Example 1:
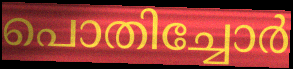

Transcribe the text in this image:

പൊതിച്ചോർ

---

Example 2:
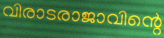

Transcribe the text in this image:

വിരാടരാജാവിന്റെ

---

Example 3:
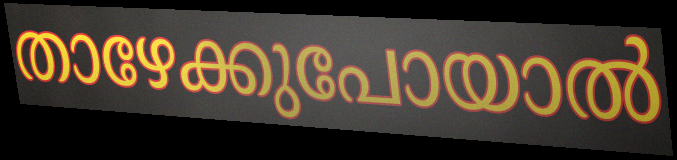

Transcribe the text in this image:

താഴേക്കുപോയാൽ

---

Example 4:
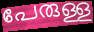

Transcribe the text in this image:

പേരുള്ള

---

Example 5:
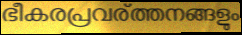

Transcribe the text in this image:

ഭീകരപ്രവര്ത്തനങ്ങളും